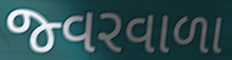
જ્વરવાળા